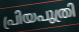
പ്രിയപുത്രി